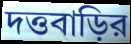
দত্তবাড়ির